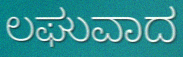
ಲಘುವಾದ